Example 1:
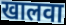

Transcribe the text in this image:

खालवा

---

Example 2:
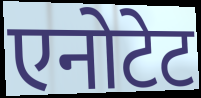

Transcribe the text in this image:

एनोटेट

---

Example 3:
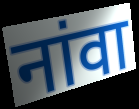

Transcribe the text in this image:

नांवा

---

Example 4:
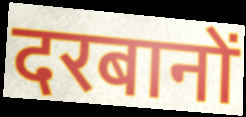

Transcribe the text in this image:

दरबानों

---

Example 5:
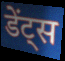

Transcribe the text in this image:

डेंट्स